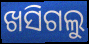
ଖସିଗଲୁ